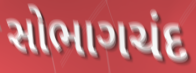
સોભાગચંદ